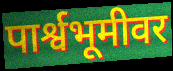
पार्श्वभूमीवर